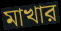
মাখার